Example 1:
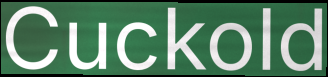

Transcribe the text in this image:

Cuckold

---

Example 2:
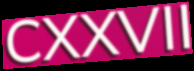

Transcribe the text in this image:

CXXVII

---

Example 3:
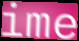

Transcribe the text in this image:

ime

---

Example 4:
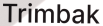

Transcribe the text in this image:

Trimbak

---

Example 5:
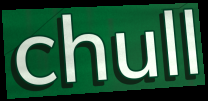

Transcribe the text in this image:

chull